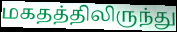
மகதத்திலிருந்து